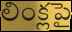
లింక్లపై